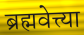
ब्रह्मवेत्त्या